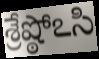
శ్రేష్ఠోఽసి